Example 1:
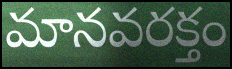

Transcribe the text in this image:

మానవరక్తం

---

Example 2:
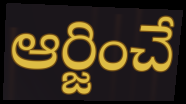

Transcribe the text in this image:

ఆర్జించే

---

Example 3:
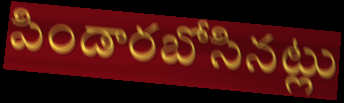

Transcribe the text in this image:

పిండారబోసినట్లు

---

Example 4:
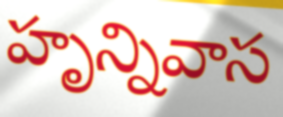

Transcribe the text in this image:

హృన్నివాస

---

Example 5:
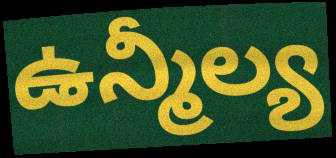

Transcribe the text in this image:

ఉన్మీల్య